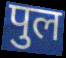
पुल